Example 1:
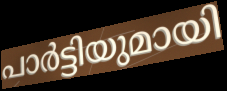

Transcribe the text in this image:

പാർട്ടിയുമായി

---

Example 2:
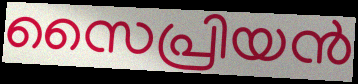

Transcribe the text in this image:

സൈപ്രിയൻ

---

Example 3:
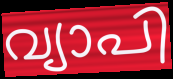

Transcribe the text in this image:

വ്യാപി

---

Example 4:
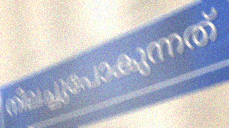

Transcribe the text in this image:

നിലച്ചുപോകുന്നത്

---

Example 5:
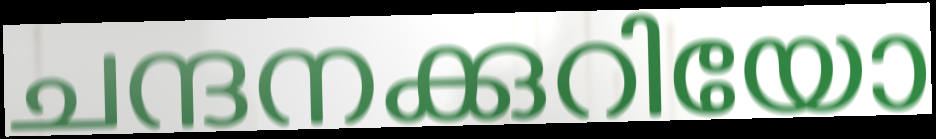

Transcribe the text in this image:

ചന്ദനക്കുറിയോ